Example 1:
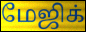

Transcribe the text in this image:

மேஜிக்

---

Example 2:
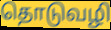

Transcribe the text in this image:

தொடுவழி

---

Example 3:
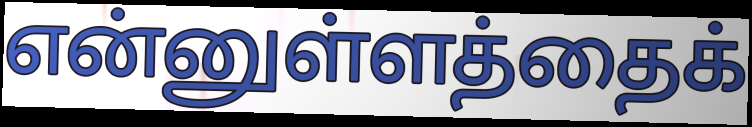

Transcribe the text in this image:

என்னுள்ளத்தைக்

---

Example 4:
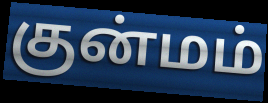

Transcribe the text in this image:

குன்மம்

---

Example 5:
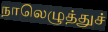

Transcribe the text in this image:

நாலெழுத்துச்